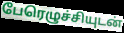
பேரெழுச்சியுடன்